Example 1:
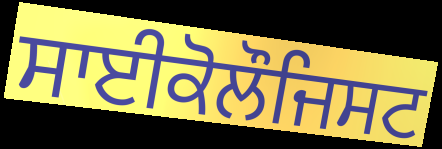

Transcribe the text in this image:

ਸਾਈਕੋਲੌਜਿਸਟ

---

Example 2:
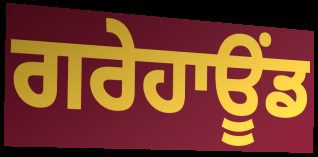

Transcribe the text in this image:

ਗਰੇਹਾਊਂਡ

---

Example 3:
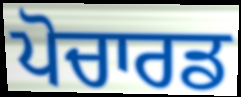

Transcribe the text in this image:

ਪੋਚਾਰਡ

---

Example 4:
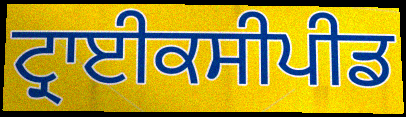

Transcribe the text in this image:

ਟ੍ਰਾਈਕਸੀਪੀਡ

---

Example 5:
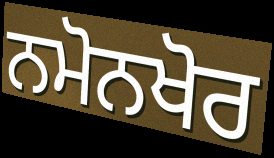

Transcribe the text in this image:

ਨਮੋਨਖੋਰ